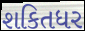
શકિતધર